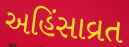
અહિંસાવ્રત